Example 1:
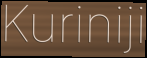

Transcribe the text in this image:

Kuriniji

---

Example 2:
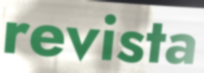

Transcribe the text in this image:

revista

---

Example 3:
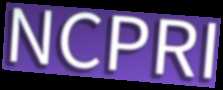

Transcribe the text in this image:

NCPRI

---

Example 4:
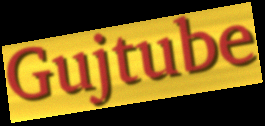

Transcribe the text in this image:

Gujtube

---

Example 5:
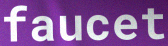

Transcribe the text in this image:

faucet